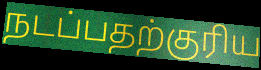
நடப்பதற்குரிய